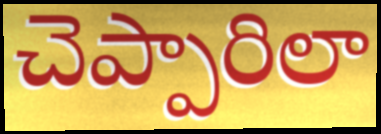
చెప్పారిలా